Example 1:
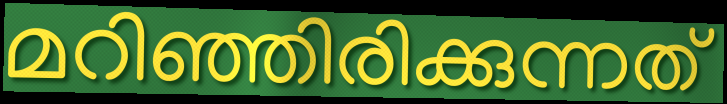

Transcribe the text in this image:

മറിഞ്ഞിരിക്കുന്നത്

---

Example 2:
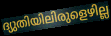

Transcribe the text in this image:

ദ്യുതിയിലിരുളെഴില്ല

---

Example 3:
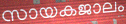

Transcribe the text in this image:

സായകജാലം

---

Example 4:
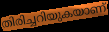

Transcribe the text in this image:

തിരിച്ചറിയുകയാണ്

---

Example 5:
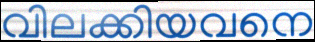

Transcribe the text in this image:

വിലക്കിയവനെ